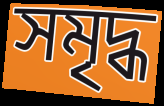
সমৃদ্ধ